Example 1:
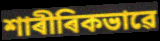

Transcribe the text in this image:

শাৰীৰিকভাৱে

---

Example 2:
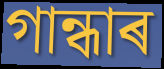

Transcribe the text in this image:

গান্ধাৰ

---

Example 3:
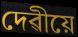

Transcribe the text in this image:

দেৱীয়ে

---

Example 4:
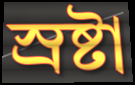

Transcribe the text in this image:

স্ৰষ্টা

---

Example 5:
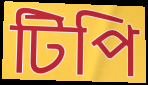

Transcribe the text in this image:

টিপি